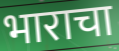
भाराचा